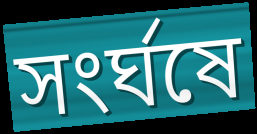
সংর্ঘষে